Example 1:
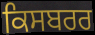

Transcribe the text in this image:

ਕਿਸਬਰਰ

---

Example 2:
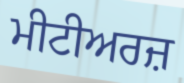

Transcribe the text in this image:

ਮੀਟੀਅਰਜ਼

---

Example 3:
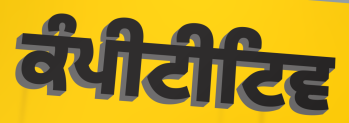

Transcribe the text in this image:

ਕੰਪੀਟੀਟਿਵ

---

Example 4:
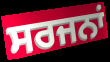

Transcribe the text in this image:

ਸਰਜਨਾਂ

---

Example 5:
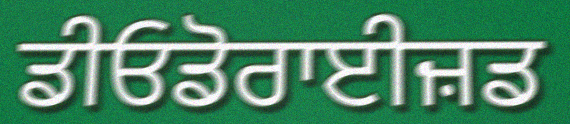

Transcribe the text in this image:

ਡੀਓਡੋਰਾਈਜ਼ਡ